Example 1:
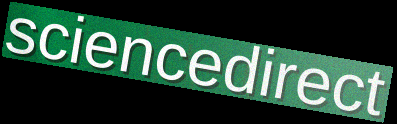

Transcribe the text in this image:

sciencedirect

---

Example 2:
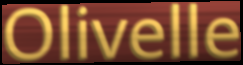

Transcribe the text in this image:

Olivelle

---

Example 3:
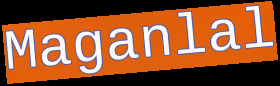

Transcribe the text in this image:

Maganlal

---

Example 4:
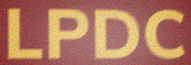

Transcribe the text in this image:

LPDC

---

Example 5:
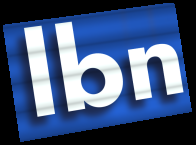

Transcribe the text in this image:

lbn